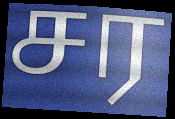
சர